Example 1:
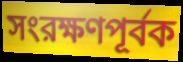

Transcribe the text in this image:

সংরক্ষণপূর্বক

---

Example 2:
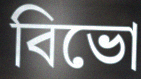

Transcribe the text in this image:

বিভো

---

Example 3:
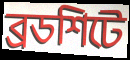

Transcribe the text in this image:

ব্রডশিটে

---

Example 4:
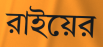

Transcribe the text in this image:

রাইয়ের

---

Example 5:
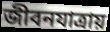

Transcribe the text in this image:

জীবনযাত্রায়